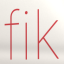
fik